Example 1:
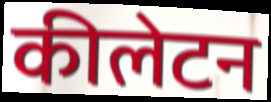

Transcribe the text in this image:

कीलेटन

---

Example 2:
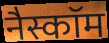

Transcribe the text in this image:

नैस्कॉम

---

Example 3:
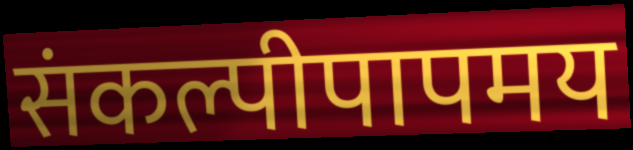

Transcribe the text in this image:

संकल्पीपापमय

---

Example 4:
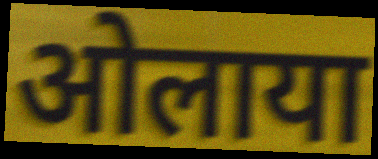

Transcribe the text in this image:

ओलाया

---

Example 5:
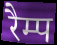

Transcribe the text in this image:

रैम्प